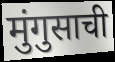
मुंगुसाची